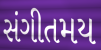
સંગીતમય